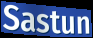
Sastun